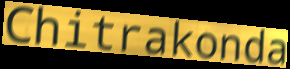
Chitrakonda